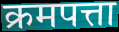
क्रमपत्ता